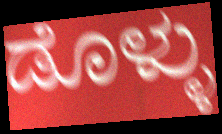
ಡೊಳ್ಳು